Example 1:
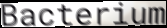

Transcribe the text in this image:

Bacterium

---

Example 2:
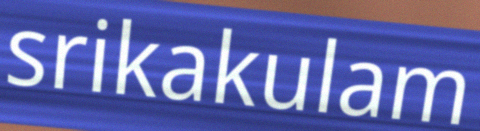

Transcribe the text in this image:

srikakulam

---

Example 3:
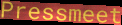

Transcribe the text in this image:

Pressmeet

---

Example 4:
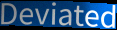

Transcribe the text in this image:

Deviated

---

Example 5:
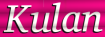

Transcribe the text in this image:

Kulan